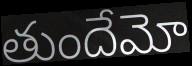
తుందేమో